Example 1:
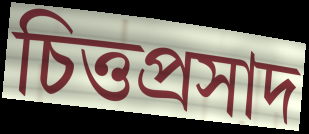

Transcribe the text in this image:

চিত্তপ্রসাদ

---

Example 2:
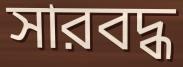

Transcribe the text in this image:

সারবদ্ধ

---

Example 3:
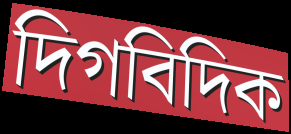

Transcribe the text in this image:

দিগবিদিক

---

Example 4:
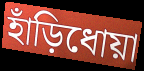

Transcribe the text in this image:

হাঁড়িধোয়া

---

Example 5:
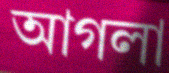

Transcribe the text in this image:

আগলা